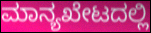
ಮಾನ್ಯಖೇಟದಲ್ಲಿ